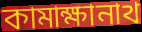
কামাক্ষানাথ